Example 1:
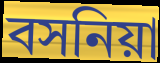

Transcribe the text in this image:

বসনিয়া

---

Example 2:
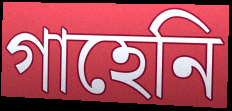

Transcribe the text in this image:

গাহেনি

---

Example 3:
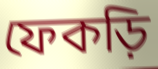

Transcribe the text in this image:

ফেকড়ি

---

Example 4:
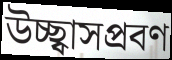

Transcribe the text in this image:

উচ্ছ্বাসপ্রবণ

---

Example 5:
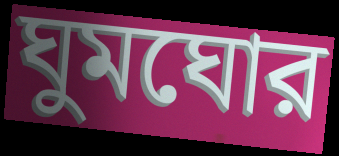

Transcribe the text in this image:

ঘুমঘোর